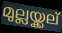
മുല്ലയ്ക്കല്